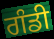
ਗੰਡੀ